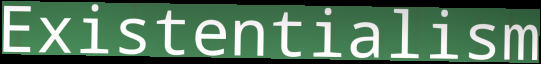
Existentialism